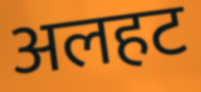
अलहट